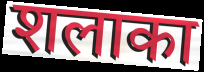
शलाका